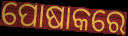
ପୋଷାକରେ